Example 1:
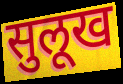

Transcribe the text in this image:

सुलूख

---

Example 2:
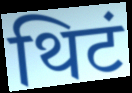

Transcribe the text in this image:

थिटं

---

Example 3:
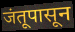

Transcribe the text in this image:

जंतूपासून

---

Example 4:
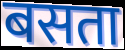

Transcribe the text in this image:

बसता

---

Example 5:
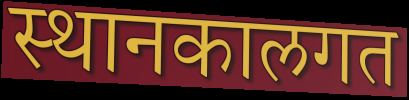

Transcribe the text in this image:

स्थानकालगत